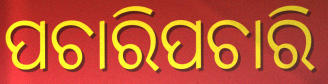
ପଚାରିପଚାରି